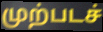
முற்படச்